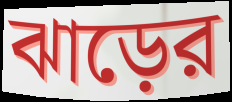
ঝাড়ের